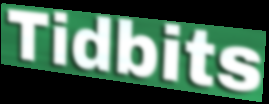
Tidbits